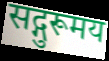
सद्गुरूमय